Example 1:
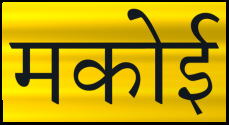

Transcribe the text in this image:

मकोई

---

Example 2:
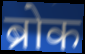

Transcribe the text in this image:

ब्रोक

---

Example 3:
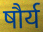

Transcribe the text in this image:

षौर्य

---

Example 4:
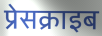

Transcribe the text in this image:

प्रेसक्राइब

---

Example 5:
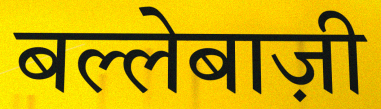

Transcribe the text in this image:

बल्‍लेबाज़ी